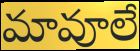
మావూలే